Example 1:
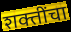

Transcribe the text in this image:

शक्तींचा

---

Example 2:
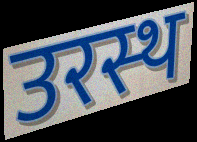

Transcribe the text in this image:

उरस्थ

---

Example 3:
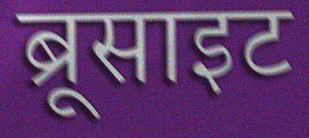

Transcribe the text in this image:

ब्रूसाइट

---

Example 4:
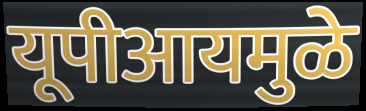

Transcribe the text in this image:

यूपीआयमुळे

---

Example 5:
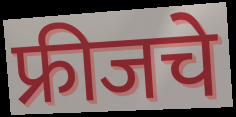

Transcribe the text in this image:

फ्रीजचे